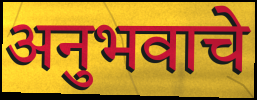
अनुभवाचे